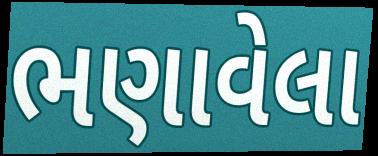
ભણાવેલા